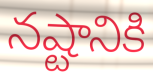
నష్టానికి